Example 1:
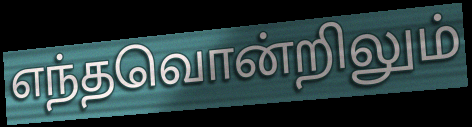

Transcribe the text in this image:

எந்தவொன்றிலும்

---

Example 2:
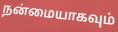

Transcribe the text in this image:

நன்மையாகவும்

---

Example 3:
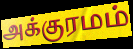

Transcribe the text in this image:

அக்குரமம்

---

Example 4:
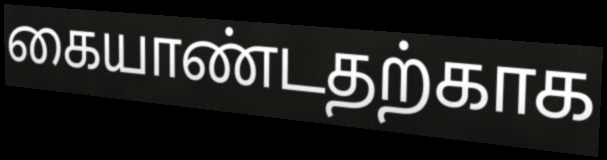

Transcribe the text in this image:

கையாண்டதற்காக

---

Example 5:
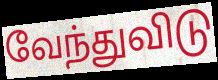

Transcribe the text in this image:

வேந்துவிடு